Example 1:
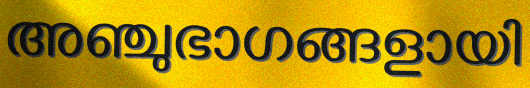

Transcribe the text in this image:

അഞ്ചുഭാഗങ്ങളായി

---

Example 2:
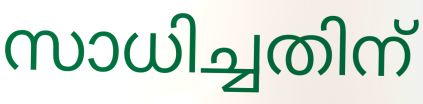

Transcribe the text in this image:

സാധിച്ചതിന്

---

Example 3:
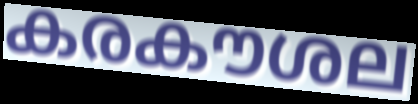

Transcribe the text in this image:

കരകൗശല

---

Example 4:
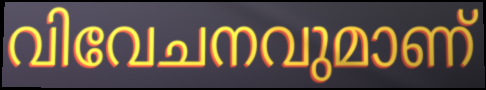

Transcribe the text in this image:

വിവേചനവുമാണ്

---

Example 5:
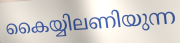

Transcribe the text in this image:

കൈയ്യിലണിയുന്ന